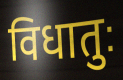
विधातुः